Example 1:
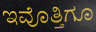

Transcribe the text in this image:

ಇವೊತ್ತಿಗೂ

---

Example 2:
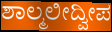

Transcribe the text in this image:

ಶಾಲ್ಮಲೀದ್ವೀಪ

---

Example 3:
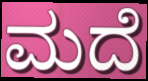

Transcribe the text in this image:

ಮದೆ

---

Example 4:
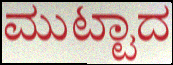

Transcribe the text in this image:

ಮುಟ್ಟಾದ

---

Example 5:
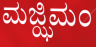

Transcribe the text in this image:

ಮಜ್ಝಿಮಂ